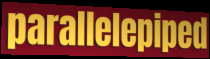
parallelepiped